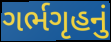
ગર્ભગૃહનું